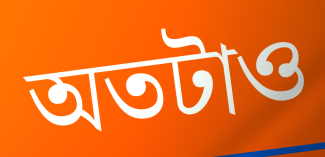
অতটাও